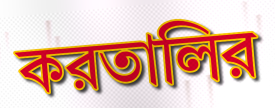
করতালির